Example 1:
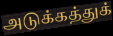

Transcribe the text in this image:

அடுக்கத்துக்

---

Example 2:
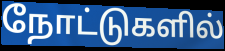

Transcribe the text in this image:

நோட்டுகளில்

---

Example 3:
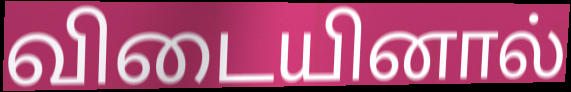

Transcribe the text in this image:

விடையினால்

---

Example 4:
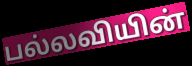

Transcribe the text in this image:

பல்லவியின்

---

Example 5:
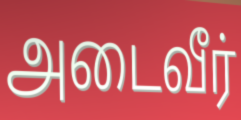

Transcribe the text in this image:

அடைவீர்